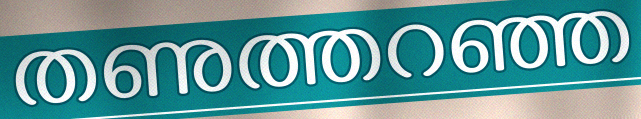
തണുത്തറഞ്ഞ